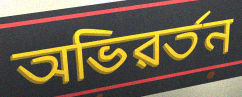
অভিৱৰ্তন